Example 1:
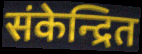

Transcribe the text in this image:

संकेन्द्रित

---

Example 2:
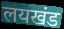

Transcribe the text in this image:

लयखंड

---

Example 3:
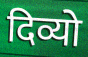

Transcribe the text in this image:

दिव्यो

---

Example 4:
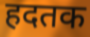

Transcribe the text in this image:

हदतक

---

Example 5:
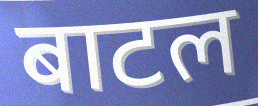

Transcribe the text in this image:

बाटल